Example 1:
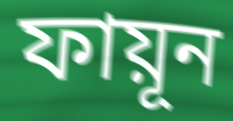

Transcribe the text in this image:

ফায়ূন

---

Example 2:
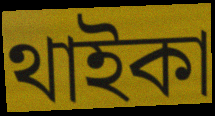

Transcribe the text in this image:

থাইকা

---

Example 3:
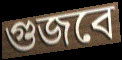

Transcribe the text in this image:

গুজবে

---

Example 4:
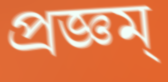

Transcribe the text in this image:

প্রজ্ঞম্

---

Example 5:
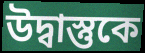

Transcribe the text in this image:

উদ্বাস্তুকে